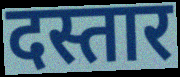
दस्तार